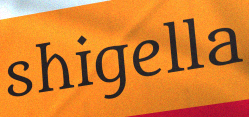
shigella